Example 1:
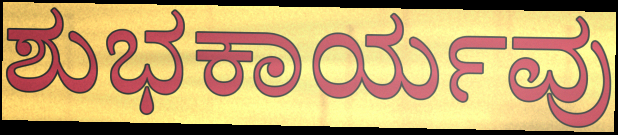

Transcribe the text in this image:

ಶುಭಕಾರ್ಯವು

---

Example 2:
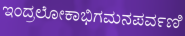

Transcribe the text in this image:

ಇಂದ್ರಲೋಕಾಭಿಗಮನಪರ್ವಣಿ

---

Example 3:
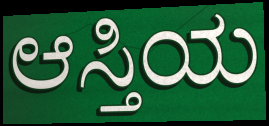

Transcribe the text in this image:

ಆಸ್ತಿಯ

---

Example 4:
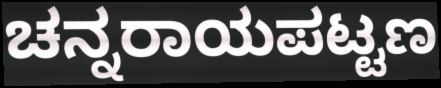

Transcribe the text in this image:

ಚನ್ನರಾಯಪಟ್ಟಣ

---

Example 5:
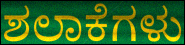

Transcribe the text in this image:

ಶಲಾಕೆಗಳು